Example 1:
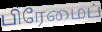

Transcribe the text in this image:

பிரேமைப்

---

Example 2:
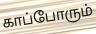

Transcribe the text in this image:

காப்போரும்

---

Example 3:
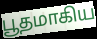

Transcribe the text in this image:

பூதமாகிய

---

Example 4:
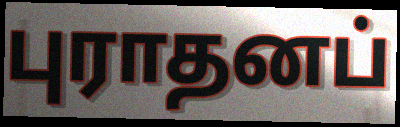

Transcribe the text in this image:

புராதனப்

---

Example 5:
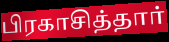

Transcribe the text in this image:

பிரகாசித்தார்